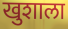
खुशाला